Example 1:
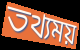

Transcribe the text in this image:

তথ্যময়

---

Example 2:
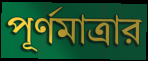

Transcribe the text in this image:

পূর্ণমাত্রার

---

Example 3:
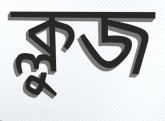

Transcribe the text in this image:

ক্লুজ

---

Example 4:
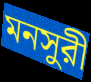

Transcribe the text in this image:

মনসুরী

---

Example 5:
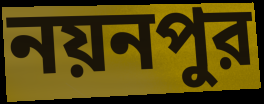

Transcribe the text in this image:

নয়নপুর